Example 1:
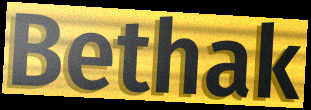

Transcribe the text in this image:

Bethak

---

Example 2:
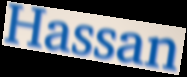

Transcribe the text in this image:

Hassan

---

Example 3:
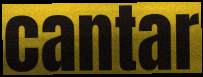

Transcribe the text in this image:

cantar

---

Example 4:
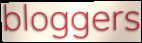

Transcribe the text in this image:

bloggers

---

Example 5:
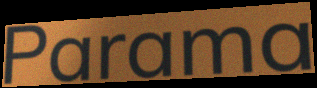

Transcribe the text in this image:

Parama